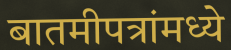
बातमीपत्रांमध्ये